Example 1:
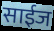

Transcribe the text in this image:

साईज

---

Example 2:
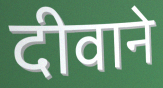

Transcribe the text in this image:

दीवाने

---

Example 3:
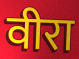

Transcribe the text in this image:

वीरा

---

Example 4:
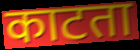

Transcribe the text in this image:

काटता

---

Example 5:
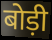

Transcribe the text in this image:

बोड़ी